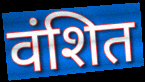
वंशित